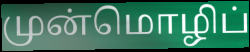
முன்மொழிப்